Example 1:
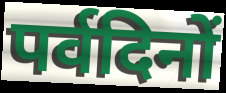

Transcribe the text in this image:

पर्वदिनों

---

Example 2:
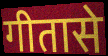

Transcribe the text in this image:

गीतासे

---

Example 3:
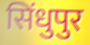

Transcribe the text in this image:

सिंधुपुर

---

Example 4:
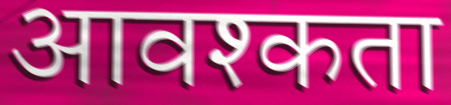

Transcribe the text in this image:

आवश्कता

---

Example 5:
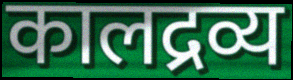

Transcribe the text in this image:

कालद्रव्य